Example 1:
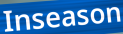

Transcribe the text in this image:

Inseason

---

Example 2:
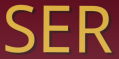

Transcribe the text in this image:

SER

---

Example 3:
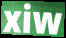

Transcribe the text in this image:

xiw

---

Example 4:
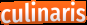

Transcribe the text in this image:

culinaris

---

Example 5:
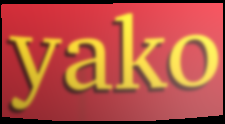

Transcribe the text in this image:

yako